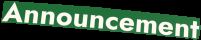
Announcement